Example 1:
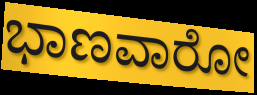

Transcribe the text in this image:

ಭಾಣವಾರೋ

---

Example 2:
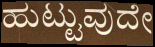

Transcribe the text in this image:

ಹುಟ್ಟುವುದೇ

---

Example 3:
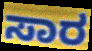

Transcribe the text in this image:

ಸಾರ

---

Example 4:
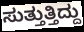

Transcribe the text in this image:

ಸುತ್ತುತ್ತಿದ್ದು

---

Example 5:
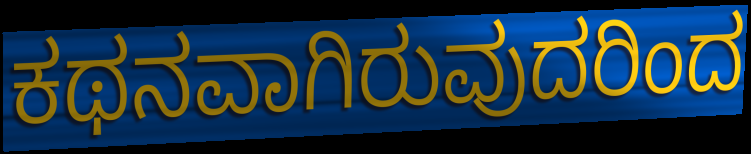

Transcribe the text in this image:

ಕಥನವಾಗಿರುವುದರಿಂದ